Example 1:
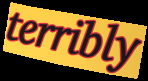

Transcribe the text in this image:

terribly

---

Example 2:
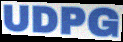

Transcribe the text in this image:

UDPG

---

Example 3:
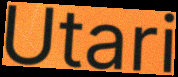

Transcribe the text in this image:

Utari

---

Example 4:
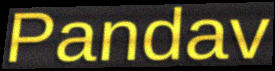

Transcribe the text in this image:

Pandav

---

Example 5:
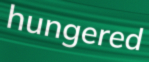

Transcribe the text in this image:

hungered